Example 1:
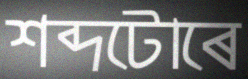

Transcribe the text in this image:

শব্দটোৰে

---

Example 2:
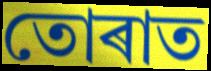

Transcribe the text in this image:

তোৰাত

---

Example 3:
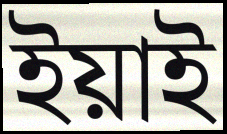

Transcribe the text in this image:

ইয়াই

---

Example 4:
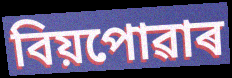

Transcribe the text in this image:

বিয়পোৱাৰ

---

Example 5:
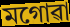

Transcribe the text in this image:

মগোৱা